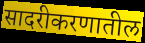
सादरीकरणातील